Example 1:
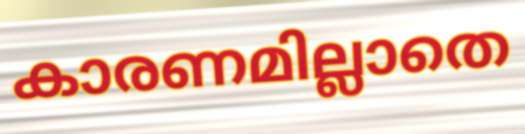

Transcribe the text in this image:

കാരണമില്ലാതെ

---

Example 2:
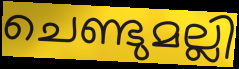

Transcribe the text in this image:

ചെണ്ടുമല്ലി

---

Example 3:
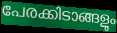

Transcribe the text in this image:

പേരക്കിടാങ്ങളും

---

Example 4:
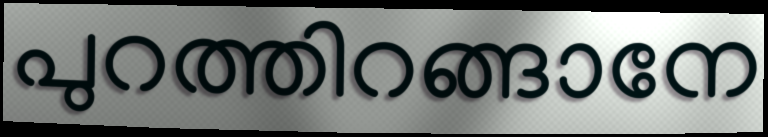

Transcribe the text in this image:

പുറത്തിറങ്ങാനേ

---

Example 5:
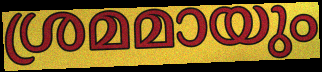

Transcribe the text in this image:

ശ്രമമായും